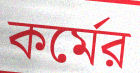
কর্মের